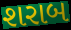
શરાબ